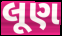
લૂણ